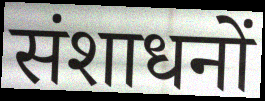
संशाधनों